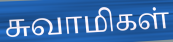
சுவாமிகள்